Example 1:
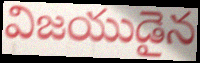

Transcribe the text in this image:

విజయుడైన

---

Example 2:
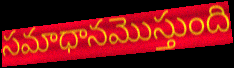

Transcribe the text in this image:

సమాధానమొస్తుంది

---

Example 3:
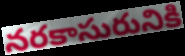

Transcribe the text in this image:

నరకాసురునికి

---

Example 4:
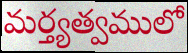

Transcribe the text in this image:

మర్త్యత్వములో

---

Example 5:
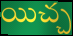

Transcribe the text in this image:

యిచ్చ